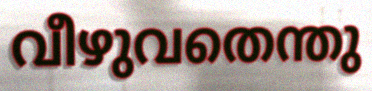
വീഴുവതെന്തു